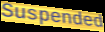
Suspended